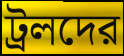
ট্রলদের